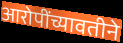
आरोपींच्यावतीने